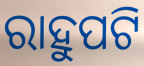
ରାହୁପଟି